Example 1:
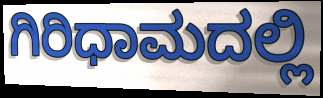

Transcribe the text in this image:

ಗಿರಿಧಾಮದಲ್ಲಿ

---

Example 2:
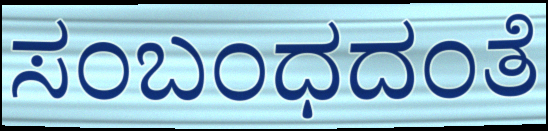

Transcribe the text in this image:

ಸಂಬಂಧದಂತೆ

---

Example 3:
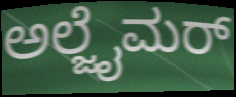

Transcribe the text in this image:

ಅಲ್ಜೈಮರ್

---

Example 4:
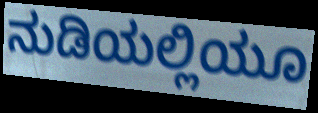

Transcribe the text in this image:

ನುಡಿಯಲ್ಲಿಯೂ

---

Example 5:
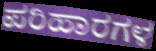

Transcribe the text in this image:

ಪರಿಹಾರಗಳ